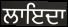
ਲਾਇਦਾ